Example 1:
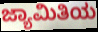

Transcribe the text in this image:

ಜ್ಯಾಮಿತಿಯ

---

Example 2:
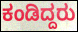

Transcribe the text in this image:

ಕಂಡಿದ್ದರು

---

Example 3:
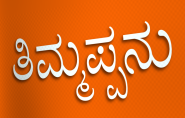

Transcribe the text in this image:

ತಿಮ್ಮಪ್ಪನು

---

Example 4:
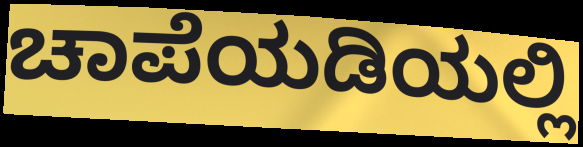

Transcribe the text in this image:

ಚಾಪೆಯಡಿಯಲ್ಲಿ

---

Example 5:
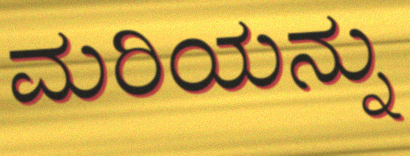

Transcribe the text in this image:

ಮರಿಯನ್ನು